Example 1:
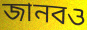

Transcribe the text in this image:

জানবও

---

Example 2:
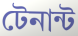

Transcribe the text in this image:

টেনান্ট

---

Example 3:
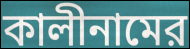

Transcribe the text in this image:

কালীনামের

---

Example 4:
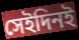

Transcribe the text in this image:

সেইদিনই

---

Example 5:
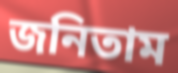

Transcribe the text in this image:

জনিতাম